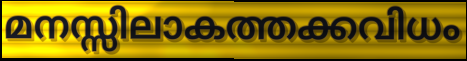
മനസ്സിലാകത്തക്കവിധം